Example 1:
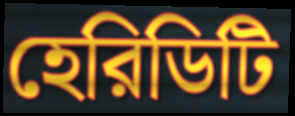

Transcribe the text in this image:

হেরিডিটি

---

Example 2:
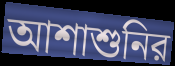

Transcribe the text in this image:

আশাশুনির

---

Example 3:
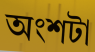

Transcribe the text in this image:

অংশটা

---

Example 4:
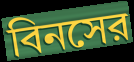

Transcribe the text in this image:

বিনসের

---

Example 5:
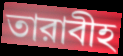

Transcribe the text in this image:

তারাবীহ